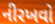
નીરખવો